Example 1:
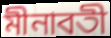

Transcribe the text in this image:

মীনাবতী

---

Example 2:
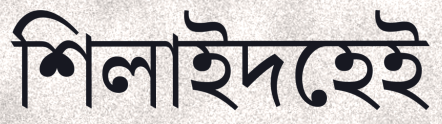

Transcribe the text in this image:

শিলাইদহেই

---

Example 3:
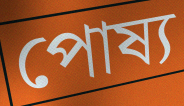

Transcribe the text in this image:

পোষ্য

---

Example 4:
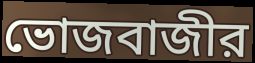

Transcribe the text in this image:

ভোজবাজীর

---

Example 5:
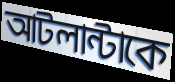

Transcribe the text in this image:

আটলান্টাকে